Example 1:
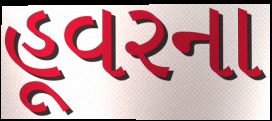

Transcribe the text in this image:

હૂવરના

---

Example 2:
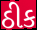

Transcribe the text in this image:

ઠીક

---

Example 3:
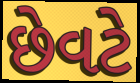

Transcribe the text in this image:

છેવટે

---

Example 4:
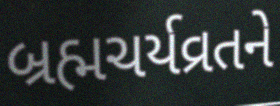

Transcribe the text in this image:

બ્રહ્મચર્યવ્રતને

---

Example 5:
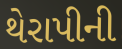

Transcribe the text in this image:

થેરાપીની